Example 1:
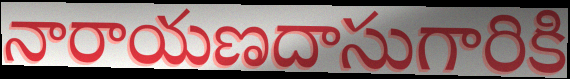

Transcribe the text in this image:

నారాయణదాసుగారికి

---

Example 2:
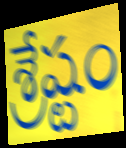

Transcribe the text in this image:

శ్రేష్టం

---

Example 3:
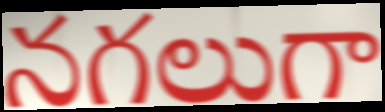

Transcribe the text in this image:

నగలుగా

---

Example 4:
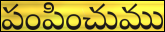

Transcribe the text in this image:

పంపించుము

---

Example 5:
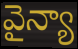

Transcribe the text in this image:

వైన్యా